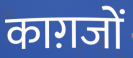
काग़जों